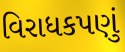
વિરાધકપણું